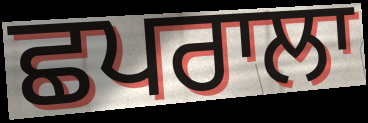
ਛਪਰਾਲਾ